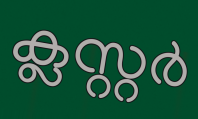
ക്ലസ്റ്റർ